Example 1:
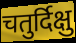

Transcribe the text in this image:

चतुर्दिक्षु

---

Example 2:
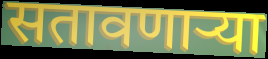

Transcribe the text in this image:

सतावणार्‍या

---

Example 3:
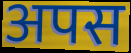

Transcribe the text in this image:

अपस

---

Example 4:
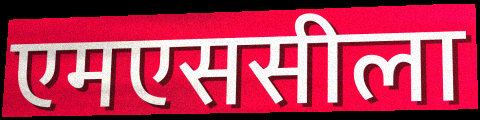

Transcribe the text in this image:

एमएससीला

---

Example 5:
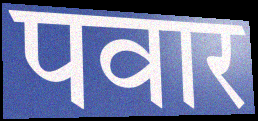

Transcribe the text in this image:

पवार